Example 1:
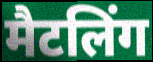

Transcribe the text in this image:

मैटलिंग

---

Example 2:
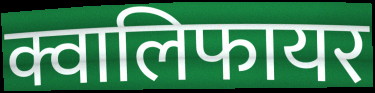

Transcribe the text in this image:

क्वालिफायर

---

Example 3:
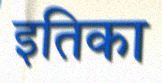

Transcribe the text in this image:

इतिका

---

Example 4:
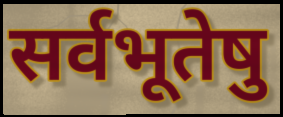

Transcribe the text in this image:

सर्वभूतेषु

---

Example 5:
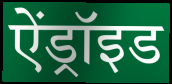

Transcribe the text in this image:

ऐंड्रॉइड